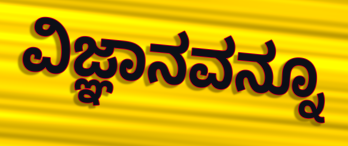
ವಿಜ್ಞಾನವನ್ನೂ